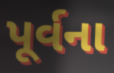
પૂર્વના